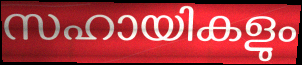
സഹായികളും